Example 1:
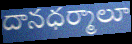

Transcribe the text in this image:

దానధర్మాలూ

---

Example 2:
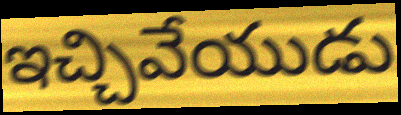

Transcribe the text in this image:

ఇచ్చివేయుడు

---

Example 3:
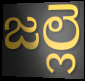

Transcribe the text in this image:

జల్లె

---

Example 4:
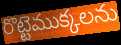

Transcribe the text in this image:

రొట్టెముక్కలను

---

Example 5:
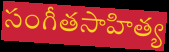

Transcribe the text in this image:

సంగీతసాహిత్య